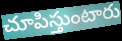
చూపిస్తుంటారు